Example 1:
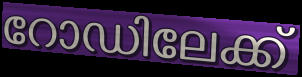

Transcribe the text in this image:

റോഡിലേക്ക്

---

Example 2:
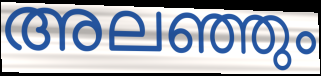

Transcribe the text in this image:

അലഞ്ഞും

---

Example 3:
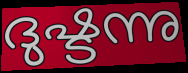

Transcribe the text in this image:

ദുഷ്ടന്നു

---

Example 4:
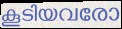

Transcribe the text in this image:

കൂടിയവരോ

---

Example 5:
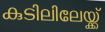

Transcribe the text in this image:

കുടിലിലേയ്ക്ക്